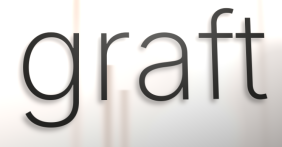
graft